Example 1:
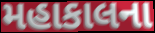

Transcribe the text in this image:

મહાકાલના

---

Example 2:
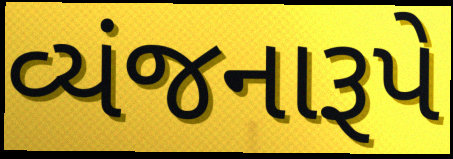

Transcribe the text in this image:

વ્યંજનારૂપે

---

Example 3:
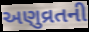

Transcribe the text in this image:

અણુવ્રતની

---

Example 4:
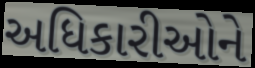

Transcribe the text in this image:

અધિકારીઓને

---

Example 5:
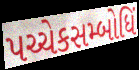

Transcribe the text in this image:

પચ્ચેકસમ્બોધિં